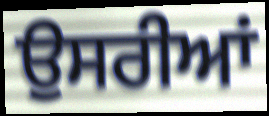
ਉਸਰੀਆਂ